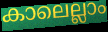
കാലെല്ലാം